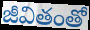
జీవితంతో